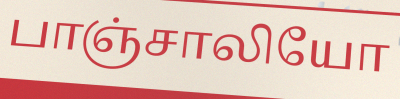
பாஞ்சாலியோ